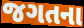
જગતના